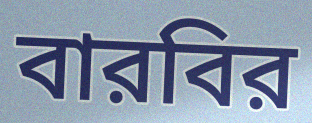
বারবির